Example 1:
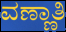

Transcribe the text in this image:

ವಣ್ಣಾತಿ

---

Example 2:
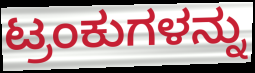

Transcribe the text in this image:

ಟ್ರಂಕುಗಳನ್ನು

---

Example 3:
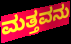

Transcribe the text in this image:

ಮತ್ತವನು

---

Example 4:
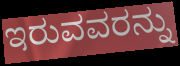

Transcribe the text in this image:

ಇರುವವರನ್ನು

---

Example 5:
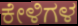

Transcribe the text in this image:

ಕೇಳಿಗಳ